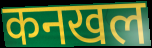
कनखल